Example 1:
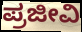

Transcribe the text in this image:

ಪ್ರಜೀವಿ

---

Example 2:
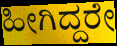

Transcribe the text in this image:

ಹೀಗಿದ್ದರೇ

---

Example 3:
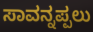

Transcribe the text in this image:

ಸಾವನ್ನಪ್ಪಲು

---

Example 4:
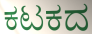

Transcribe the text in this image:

ಕಟಕದ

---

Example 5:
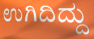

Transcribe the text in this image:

ಉಗಿದಿದ್ದು